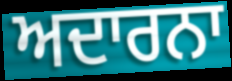
ਅਦਾਰਨਾ